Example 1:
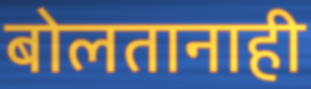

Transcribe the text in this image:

बोलतानाही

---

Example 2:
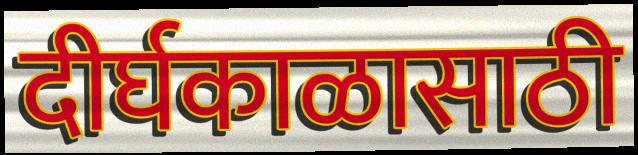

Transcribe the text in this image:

दीर्घकाळासाठी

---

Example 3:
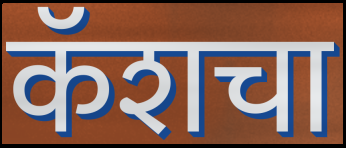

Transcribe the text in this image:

कॅशचा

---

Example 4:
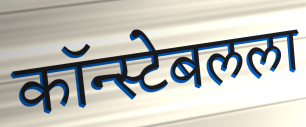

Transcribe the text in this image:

कॉन्स्टेबलला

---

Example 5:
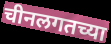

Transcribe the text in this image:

चीनलगतच्या